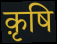
क़ृषि